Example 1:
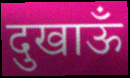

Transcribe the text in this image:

दुखाऊँ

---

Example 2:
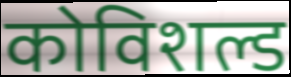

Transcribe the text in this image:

कोविशल्ड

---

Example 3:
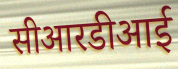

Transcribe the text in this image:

सीआरडीआई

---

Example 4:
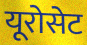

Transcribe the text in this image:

यूरोसेट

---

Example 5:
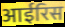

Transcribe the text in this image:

आईरिस